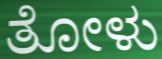
ತೋಳು